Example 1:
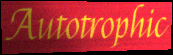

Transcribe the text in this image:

Autotrophic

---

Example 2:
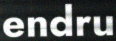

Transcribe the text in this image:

endru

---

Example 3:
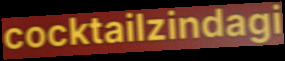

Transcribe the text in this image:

cocktailzindagi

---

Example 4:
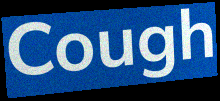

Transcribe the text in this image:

Cough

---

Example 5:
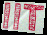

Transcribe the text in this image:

IIT